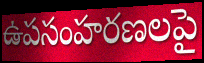
ఉపసంహరణలపై